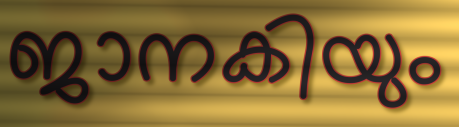
ജാനകിയും